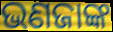
ଭଣଜାଙ୍କ